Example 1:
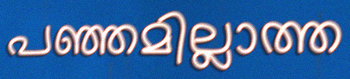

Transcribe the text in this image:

പഞ്ഞമില്ലാത്ത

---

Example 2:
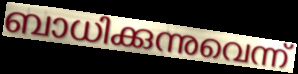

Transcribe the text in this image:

ബാധിക്കുന്നുവെന്ന്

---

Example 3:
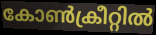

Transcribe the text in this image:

കോൺക്രീറ്റിൽ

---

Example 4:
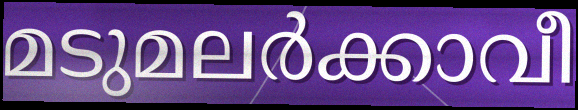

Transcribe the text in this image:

മടുമലർക്കാവീ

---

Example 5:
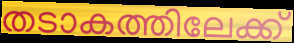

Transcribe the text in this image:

തടാകത്തിലേക്ക്